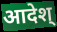
आदेश्